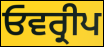
ਓਵਰ੍ਰੀਪ